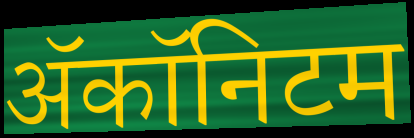
ॲकॉनिटम